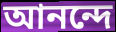
আনন্দে